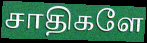
சாதிகளே